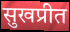
सुखप्रीत